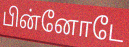
பின்னோடே